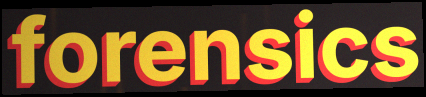
forensics